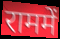
राममें